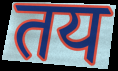
तय